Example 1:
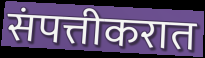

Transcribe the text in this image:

संपत्तीकरात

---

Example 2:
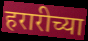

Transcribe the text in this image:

हरारीच्या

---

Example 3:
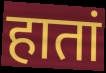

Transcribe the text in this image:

हातां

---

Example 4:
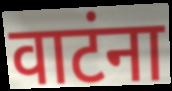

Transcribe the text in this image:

वाटंना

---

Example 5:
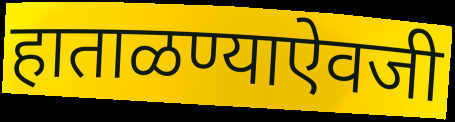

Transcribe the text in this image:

हाताळण्याऐवजी